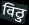
विठु